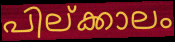
പില്ക്കാലം